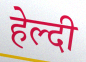
हेल्‍दी